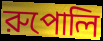
রুপোলি